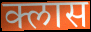
क्लास